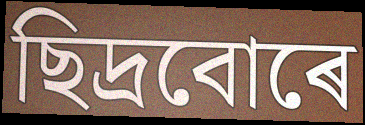
ছিদ্ৰবোৰে